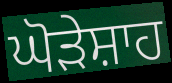
ਘੋੜੇਸ਼ਾਹ